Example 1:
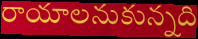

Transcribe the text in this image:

రాయాలనుకున్నది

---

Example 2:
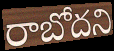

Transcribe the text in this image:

రాబోదని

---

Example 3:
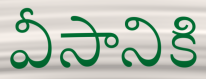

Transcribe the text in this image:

వీసానికి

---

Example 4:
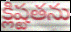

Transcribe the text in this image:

క్లిష్టతను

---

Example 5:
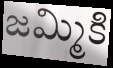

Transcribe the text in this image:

జమ్మికి